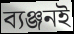
ব্যঞ্জনই